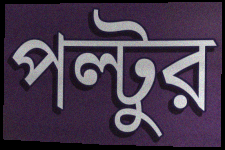
পল্টুর